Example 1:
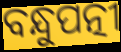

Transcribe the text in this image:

ବନ୍ଧୁପତ୍ନୀ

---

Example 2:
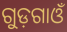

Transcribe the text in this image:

ଗୁଡ଼ଗାଓଁ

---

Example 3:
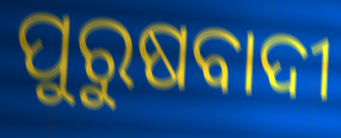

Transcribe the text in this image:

ପୁରୁଷବାଦୀ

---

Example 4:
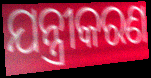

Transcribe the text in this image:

ଯନ୍ତ୍ରୀକରଣ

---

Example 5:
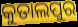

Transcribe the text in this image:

କୁତାଲପୁର